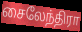
சைலேந்திரா